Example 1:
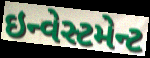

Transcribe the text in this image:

ઇન્વેસ્ટમેન્ટ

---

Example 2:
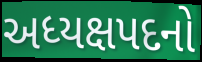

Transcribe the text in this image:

અધ્યક્ષપદનો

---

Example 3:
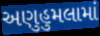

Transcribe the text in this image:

અણુહુમલામાં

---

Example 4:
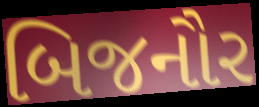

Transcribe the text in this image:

બિજનૌર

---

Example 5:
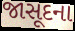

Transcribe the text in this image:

જાસૂદના